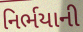
નિર્ભયાની